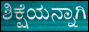
ಶಿಕ್ಷೆಯನ್ನಾಗಿ